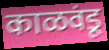
काळवंडू